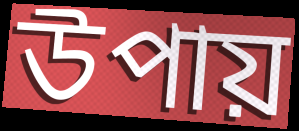
উপায়